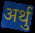
अर्थु